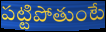
పట్టిపోతుంటే